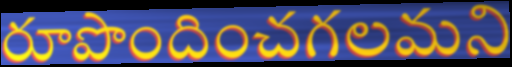
రూపొందించగలమని